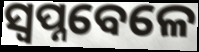
ସ୍ଵପ୍ନବେଳେ